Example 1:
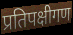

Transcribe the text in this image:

प्रतिपक्षीगण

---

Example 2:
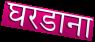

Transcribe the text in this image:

घरडाना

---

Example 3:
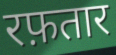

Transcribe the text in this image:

रफ़तार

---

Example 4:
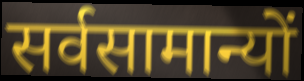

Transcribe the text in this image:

सर्वसामान्यों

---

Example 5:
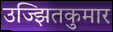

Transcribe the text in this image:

उज्झितकुमार